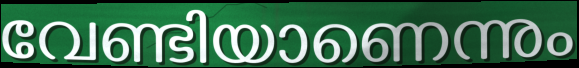
വേണ്ടിയാണെന്നും